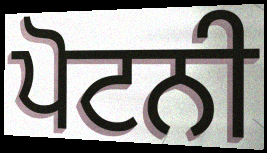
ਪੋਟਨੀ